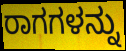
ರಾಗಗಳನ್ನು